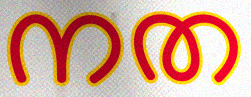
നത